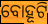
ବୋହୂଟି